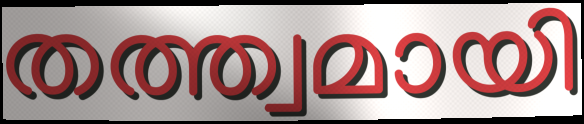
തത്ത്വമായി